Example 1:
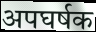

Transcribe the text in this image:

अपघर्षक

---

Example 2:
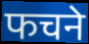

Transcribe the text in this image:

फचने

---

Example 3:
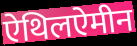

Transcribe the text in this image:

ऐथिलऐमीन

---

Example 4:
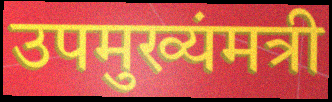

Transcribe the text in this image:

उपमुख्यंमत्री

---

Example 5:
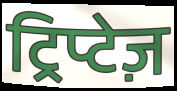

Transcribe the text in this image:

ट्रिप्टेज़